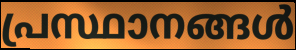
പ്രസ്ഥാനങ്ങൾ